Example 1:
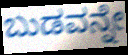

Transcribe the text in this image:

ಬುಡವನ್ನೇ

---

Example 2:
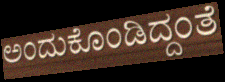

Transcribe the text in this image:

ಅಂದುಕೊಂಡಿದ್ದಂತೆ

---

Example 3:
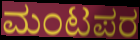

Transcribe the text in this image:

ಮಂಟಪರ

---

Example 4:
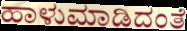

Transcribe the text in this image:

ಹಾಳುಮಾಡಿದಂತೆ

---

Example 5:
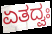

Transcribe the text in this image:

ಏತದ್ವಃ